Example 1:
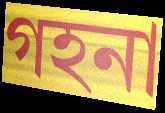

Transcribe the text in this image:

গহনা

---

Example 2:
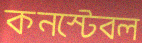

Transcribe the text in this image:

কনস্টেবল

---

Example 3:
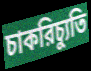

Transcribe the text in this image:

চাকরিচ্যুতি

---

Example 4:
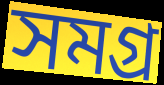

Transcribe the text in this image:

সমগ্র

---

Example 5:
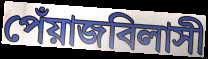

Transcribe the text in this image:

পেঁয়াজবিলাসী